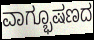
ವಾಗ್ಭೂಷಣದ